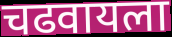
चढवायला